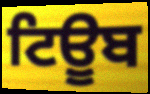
ਟਿਊੂਬ